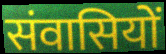
संवासियों